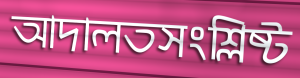
আদালতসংশ্লিষ্ট